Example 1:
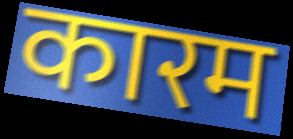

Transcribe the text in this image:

कारम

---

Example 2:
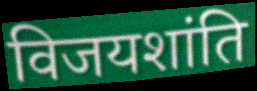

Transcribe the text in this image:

विजयशांति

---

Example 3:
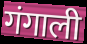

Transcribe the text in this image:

गंगाली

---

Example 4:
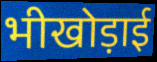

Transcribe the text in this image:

भीखोड़ाई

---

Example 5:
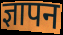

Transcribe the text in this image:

ज्ञापन